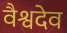
वैश्वदेव